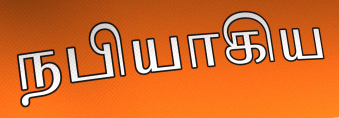
நபியாகிய